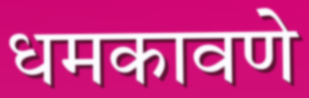
धमकावणे